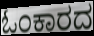
ಓಂಕಾರದ